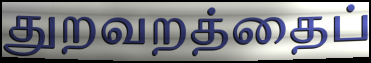
துறவறத்தைப்